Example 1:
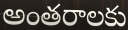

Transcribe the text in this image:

అంతరాలకు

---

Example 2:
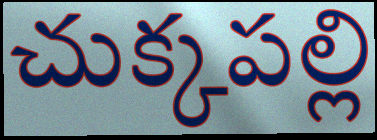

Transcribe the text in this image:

చుక్కపల్లి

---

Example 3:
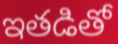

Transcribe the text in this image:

ఇతడితో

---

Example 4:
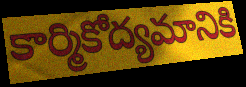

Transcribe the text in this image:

కార్మికోద్యమానికి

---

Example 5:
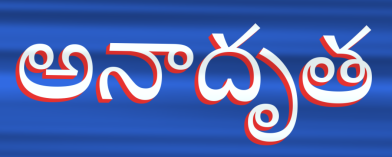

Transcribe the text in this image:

అనాదృత